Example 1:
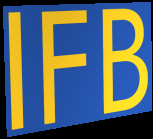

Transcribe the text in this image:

IFB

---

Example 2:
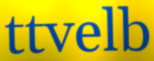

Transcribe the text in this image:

ttvelb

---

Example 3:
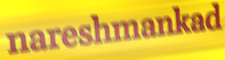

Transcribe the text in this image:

nareshmankad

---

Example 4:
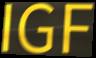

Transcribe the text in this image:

IGF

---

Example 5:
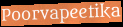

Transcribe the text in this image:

Poorvapeetika